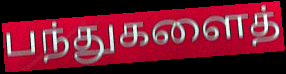
பந்துகளைத்